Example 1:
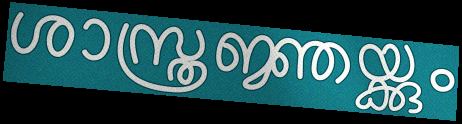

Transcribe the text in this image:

ശാസ്ത്രജ്ഞയ്ക്കും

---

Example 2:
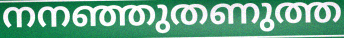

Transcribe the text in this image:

നനഞ്ഞുതണുത്ത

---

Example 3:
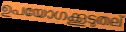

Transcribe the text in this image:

ഉപയോഗക്കൂടുതല്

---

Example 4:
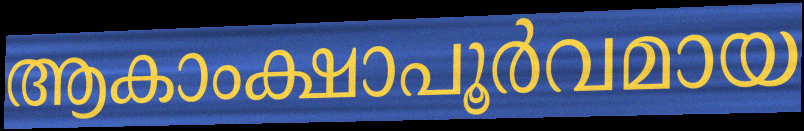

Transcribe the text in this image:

ആകാംക്ഷാപൂർവമായ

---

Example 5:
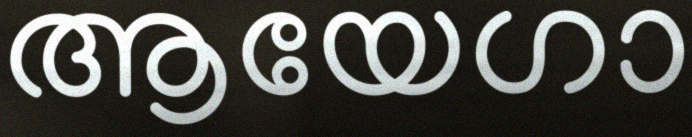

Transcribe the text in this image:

ആയേഗാ